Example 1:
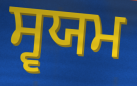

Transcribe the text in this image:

ਸ੍ਵਯਮ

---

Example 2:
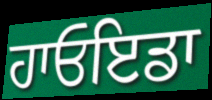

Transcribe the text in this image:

ਹਾਓਇਡਾ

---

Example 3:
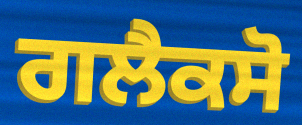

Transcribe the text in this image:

ਗਲੈਕਸੋ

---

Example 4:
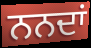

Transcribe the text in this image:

ਨਨਦਾਂ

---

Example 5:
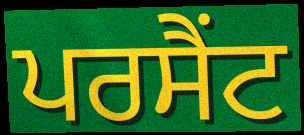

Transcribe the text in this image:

ਪਰਸੈਂਟ